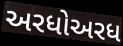
અરધોઅરધ